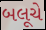
બલૂચે